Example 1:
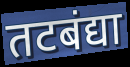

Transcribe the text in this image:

तटबंद्या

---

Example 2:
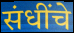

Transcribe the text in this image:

संधींचे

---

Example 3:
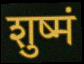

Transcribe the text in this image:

शुष्मं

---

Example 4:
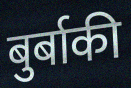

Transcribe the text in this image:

बुर्बाकी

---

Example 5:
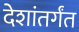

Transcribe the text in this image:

देशांतर्गंत